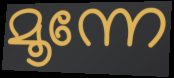
മൂന്നേ